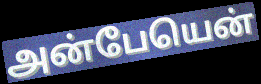
அன்பேயென்